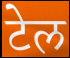
टेल